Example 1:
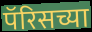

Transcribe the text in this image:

पॅरिसच्या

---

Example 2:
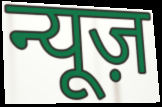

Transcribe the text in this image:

न्यूज़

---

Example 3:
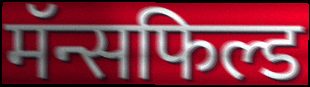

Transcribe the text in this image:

मॅन्सफिल्ड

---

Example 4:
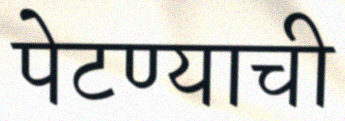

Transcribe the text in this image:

पेटण्याची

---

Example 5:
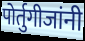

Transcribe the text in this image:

पोर्तुगीजांनी